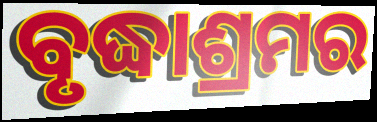
ବୃଦ୍ଧାଶ୍ରମର